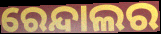
ରେନ୍ଦାଲର